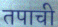
तपाची